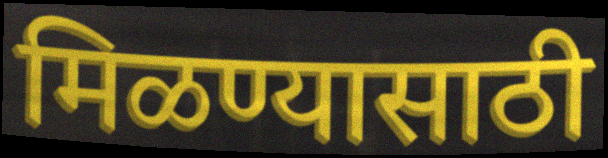
मिळण्‍यासाठी